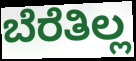
ಬೆರೆತಿಲ್ಲ